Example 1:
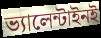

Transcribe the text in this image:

ভ্যালেন্টাইনই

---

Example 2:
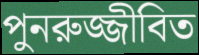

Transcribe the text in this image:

পুনরুজ্জীবিত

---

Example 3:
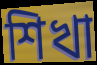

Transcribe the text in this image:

শিখা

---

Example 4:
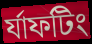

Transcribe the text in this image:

র্যাফটিং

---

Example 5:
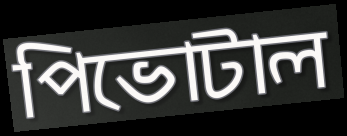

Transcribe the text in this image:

পিভোটাল